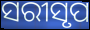
ସରୀସୃପ